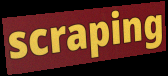
scraping